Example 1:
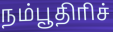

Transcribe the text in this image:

நம்பூதிரிச்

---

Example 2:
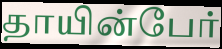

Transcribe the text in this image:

தாயின்பேர்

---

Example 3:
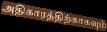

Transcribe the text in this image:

அதிகாரத்திற்காகவும்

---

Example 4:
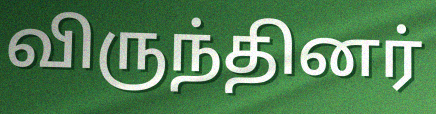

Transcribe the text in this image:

விருந்தினர்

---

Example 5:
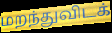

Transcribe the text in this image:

மறந்துவிடக்